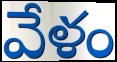
వేళం